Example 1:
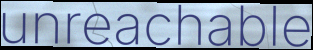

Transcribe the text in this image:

unreachable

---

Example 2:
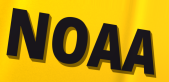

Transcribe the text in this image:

NOAA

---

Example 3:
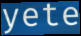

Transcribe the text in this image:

yete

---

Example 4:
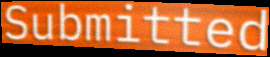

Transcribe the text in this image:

Submitted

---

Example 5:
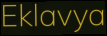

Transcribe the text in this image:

Eklavya